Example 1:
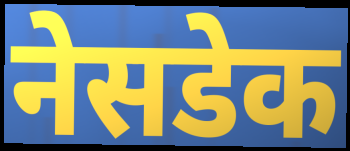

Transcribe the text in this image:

नेसडेक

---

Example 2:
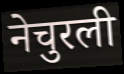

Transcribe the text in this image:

नेचुरली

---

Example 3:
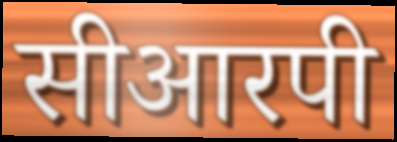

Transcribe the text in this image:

सीआरपी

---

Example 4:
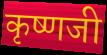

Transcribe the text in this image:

कृष्णजी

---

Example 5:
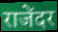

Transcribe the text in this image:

राजेंदर